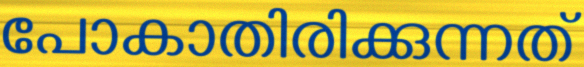
പോകാതിരിക്കുന്നത്